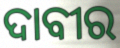
ଦାବୀର